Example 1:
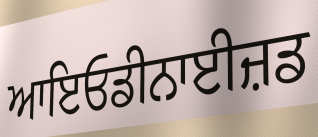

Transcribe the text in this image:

ਆਇਓਡੀਨਾਈਜ਼ਡ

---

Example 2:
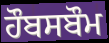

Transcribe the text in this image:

ਹੌਬਸਬੌਮ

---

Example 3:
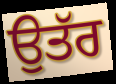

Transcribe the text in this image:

ਉਤੱਰ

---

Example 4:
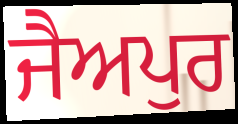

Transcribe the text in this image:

ਜੈਅਪੁਰ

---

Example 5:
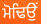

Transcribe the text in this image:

ਮੋਢਿਉਂ